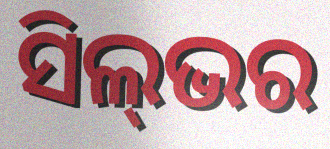
ସିଲ୍‌ଭର